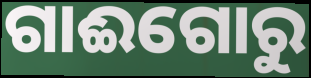
ଗାଈଗୋରୁ